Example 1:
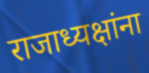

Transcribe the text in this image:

राजाध्यक्षांना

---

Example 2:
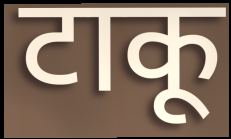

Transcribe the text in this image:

टाकू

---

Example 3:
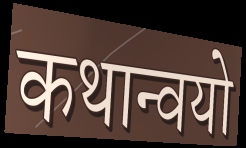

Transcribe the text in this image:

कथान्वयो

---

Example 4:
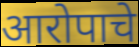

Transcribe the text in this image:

आरोपाचे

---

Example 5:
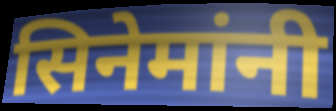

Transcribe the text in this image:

सिनेमांनी